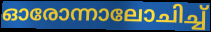
ഓരോന്നാലോചിച്ച്